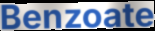
Benzoate